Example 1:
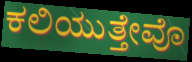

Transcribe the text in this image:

ಕಲಿಯುತ್ತೇವೊ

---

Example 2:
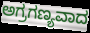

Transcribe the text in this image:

ಅಗ್ರಗಣ್ಯವಾದ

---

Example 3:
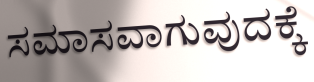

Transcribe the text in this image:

ಸಮಾಸವಾಗುವುದಕ್ಕೆ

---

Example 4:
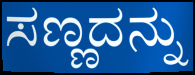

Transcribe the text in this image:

ಸಣ್ಣದನ್ನು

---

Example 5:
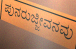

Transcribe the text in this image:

ಪುನರುಜ್ಜೀವನವು